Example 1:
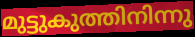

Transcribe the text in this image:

മുട്ടുകുത്തിനിന്നു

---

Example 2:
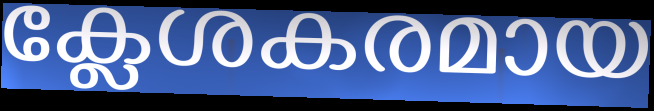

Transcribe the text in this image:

ക്ലേശകരമായ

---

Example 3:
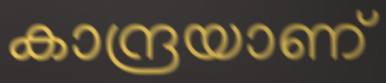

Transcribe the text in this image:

കാന്ദ്രയാണ്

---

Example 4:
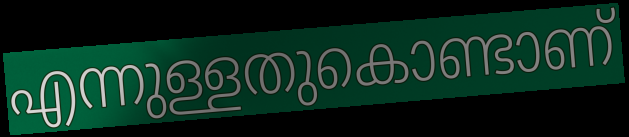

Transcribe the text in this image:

എന്നുള്ളതുകൊണ്ടാണ്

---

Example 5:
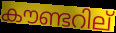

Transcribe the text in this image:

കൗണ്ടറില്